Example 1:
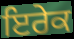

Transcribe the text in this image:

ਇਰੇਕ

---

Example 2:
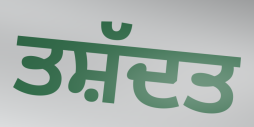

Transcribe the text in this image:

ਤਸ਼ੱਦਤ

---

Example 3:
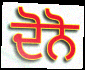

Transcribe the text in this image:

ਦੋਨੋ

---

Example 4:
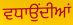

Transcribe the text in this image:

ਵਧਾਉਂਦੀਆਂ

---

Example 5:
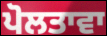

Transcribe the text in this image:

ਪੋਲਤਾਵਾ